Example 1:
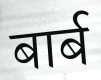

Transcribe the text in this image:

बार्ब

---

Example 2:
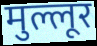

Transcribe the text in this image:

मुल्लूर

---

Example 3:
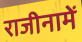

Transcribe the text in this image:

राजीनामें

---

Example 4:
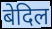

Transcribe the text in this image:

बेदिल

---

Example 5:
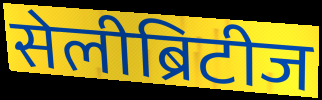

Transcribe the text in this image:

सेलीब्रिटीज